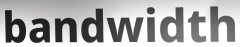
bandwidth